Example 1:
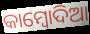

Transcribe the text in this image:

କାମ୍ବୋଦିଆ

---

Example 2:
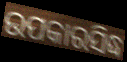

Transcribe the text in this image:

ଉପକାରସିଦ୍ଧ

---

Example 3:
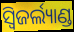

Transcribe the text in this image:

ସ୍ୱିଜର୍ଲ୍ୟାଣ୍ଡ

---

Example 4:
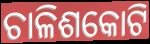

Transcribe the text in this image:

ଚାଳିଶକୋଟି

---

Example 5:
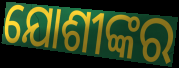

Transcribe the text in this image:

ଯୋଶୀଙ୍କର